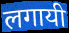
लगायी